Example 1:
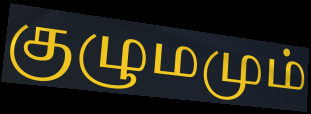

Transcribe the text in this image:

குழுமமும்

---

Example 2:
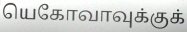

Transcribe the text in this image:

யெகோவாவுக்குக்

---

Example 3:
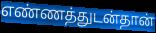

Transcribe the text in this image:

எண்ணத்துடன்தான்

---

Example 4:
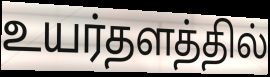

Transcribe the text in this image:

உயர்தளத்தில்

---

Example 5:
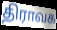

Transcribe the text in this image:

திராவக